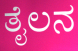
ತೈಲನ